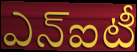
ఎన్ఐటీ